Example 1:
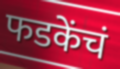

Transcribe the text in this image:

फडकेंचं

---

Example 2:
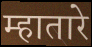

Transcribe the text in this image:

म्हातारे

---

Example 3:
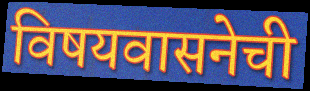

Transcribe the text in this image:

विषयवासनेची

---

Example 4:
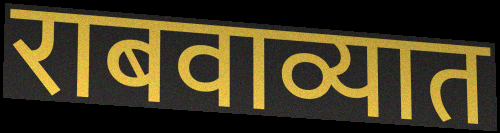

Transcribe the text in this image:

राबवाव्यात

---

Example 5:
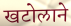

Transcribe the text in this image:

खटोलाने